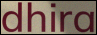
dhira